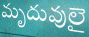
మృదువులై